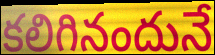
కలిగినందునే